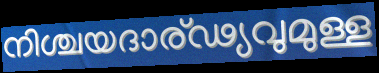
നിശ്ചയദാര്ഢ്യവുമുള്ള